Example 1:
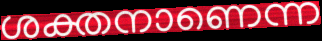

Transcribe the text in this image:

ശക്തനാണെന്ന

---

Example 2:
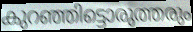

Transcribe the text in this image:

കുറഞ്ഞിട്ടൊരുത്തരും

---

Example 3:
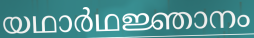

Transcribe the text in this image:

യഥാർഥജ്ഞാനം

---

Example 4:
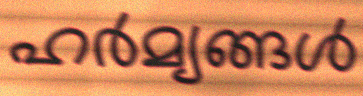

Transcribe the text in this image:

ഹർമ്യങ്ങൾ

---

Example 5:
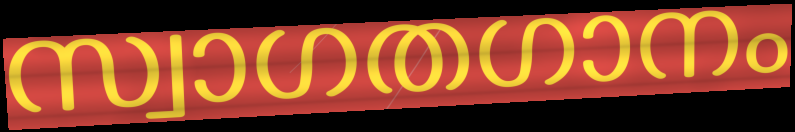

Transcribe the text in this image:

സ്വാഗതഗാനം